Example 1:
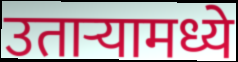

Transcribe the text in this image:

उतार्‍यामध्ये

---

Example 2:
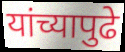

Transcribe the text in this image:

यांच्यापुढे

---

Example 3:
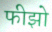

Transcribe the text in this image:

फीझो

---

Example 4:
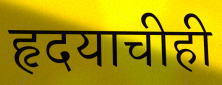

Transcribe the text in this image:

हृदयाचीही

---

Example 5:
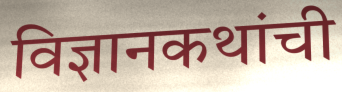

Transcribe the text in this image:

विज्ञानकथांची